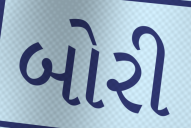
બોરી